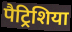
पैट्रिशिया